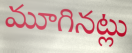
మూగినట్లు